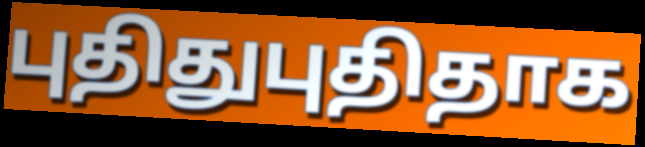
புதிதுபுதிதாக